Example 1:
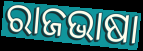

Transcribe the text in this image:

ରାଜଭାଷା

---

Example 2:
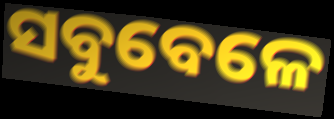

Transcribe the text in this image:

ସବୁବେଳେ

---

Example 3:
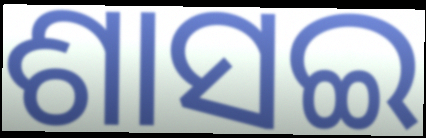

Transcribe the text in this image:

ଶାସଇ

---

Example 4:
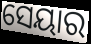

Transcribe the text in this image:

ସେୟାର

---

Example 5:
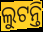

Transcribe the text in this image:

ଲୁଟନ୍ତି